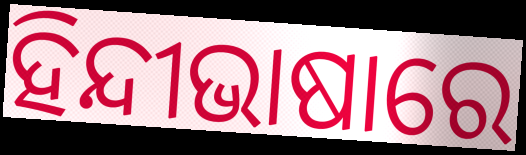
ହିନ୍ଦୀଭାଷାରେ